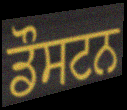
ਡੌਸਟਨ